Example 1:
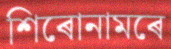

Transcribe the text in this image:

শিৰোনামৰে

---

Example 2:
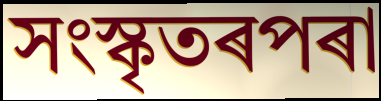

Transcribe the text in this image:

সংস্কৃতৰপৰা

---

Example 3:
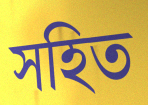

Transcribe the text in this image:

সহিত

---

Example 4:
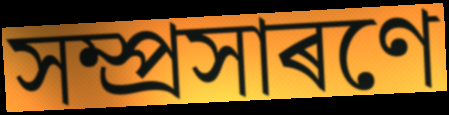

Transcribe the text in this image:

সম্প্ৰসাৰণে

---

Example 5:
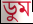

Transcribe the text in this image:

ডুম